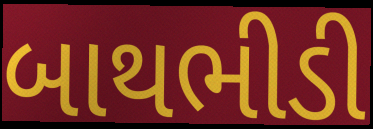
બાથભીડી